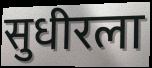
सुधीरला